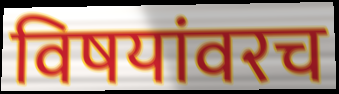
विषयांवरच